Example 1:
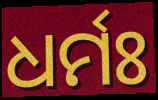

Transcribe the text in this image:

ଧର୍ମଃ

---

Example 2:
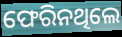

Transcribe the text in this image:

ଫେରିନଥିଲେ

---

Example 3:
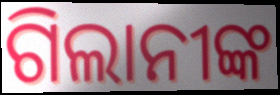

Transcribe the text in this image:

ଗିଲାନୀଙ୍କ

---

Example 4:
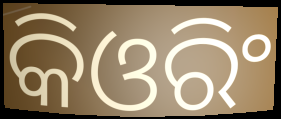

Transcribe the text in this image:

କିଓରିଂ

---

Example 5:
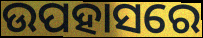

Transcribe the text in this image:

ଉପହାସରେ